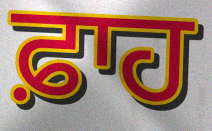
ਫ਼ਾਹ